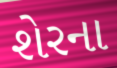
શેરના